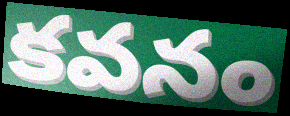
కవనం